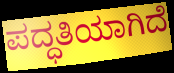
ಪದ್ಧತಿಯಾಗಿದೆ